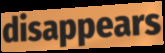
disappears